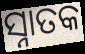
ସ୍ନାତକ